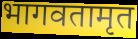
भागवतामृत